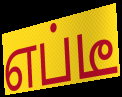
எப்டீ